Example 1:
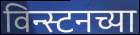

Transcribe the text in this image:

विन्स्टनच्या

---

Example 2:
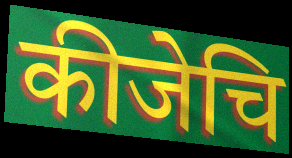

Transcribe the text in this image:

कीजेचि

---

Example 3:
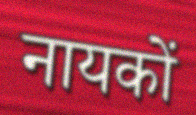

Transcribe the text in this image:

नायकों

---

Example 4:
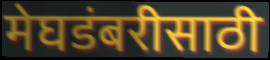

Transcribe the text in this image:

मेघडंबरीसाठी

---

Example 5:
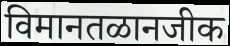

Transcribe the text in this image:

विमानतळानजीक